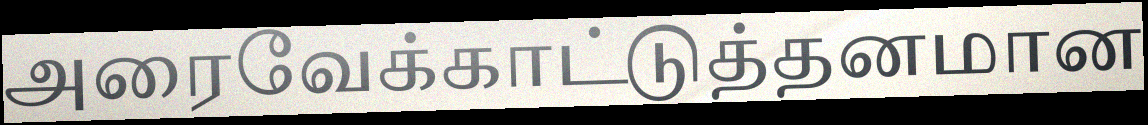
அரைவேக்காட்டுத்தனமான